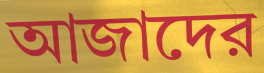
আজাদের